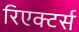
रिएक्टर्स